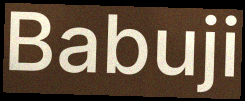
Babuji